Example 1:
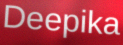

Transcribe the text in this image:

Deepika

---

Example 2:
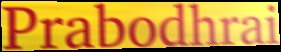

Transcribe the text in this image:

Prabodhrai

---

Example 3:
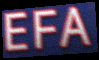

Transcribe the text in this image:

EFA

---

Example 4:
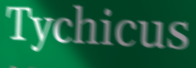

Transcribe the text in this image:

Tychicus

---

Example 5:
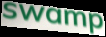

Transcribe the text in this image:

swamp